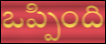
ఒప్పింది